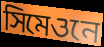
সিমেওনে